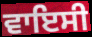
ਵਾਇਸੀ